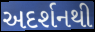
અદર્શનથી